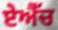
ਏਐੱਚ